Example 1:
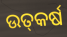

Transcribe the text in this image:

ଉତ୍‌କର୍ଷ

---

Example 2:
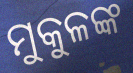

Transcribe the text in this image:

ମୁକୁଳଙ୍କ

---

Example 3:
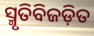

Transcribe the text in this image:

ସ୍ମୃତିବିଜଡ଼ିତ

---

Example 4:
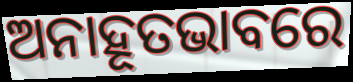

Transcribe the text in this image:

ଅନାହୂତଭାବରେ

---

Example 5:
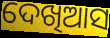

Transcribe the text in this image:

ଦେଖିଆସ